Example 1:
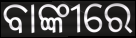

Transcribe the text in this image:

ବାଙ୍କୀରେ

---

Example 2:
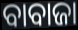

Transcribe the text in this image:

ବାବାଜା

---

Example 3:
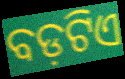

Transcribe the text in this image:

ବଡ଼ଟିଏ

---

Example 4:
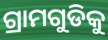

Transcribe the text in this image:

ଗ୍ରାମଗୁଡିକୁ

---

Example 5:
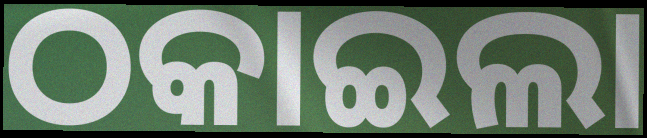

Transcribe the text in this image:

ଠକାଇଲା